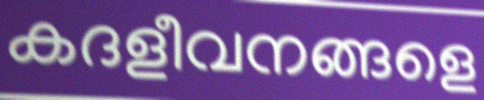
കദളീവനങ്ങളെ